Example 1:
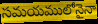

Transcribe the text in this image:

సమయములోనైనా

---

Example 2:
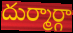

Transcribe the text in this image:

దుర్మార్గా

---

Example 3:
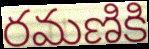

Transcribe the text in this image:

రమణికి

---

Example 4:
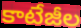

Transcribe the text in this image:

కాటేజీల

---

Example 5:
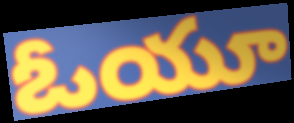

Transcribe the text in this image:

ఓయూ